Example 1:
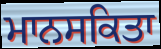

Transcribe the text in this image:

ਮਾਨਸਕਿਤਾ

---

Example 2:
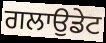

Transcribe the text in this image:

ਗਲਾਉਡੇਟ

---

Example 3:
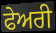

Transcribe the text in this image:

ਫੇਅਰੀ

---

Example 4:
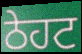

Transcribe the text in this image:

ਠੇਹਟ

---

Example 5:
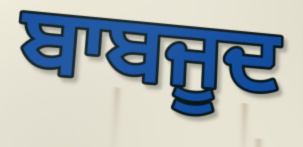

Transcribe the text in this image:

ਬਾਬਜੂਦ